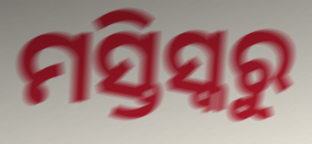
ମସ୍ତିସ୍କରୁ